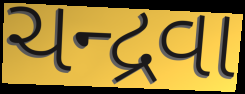
ચન્દ્રવા